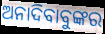
ଅନାଦିବାବୁଙ୍କର